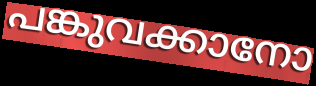
പങ്കുവക്കാനോ